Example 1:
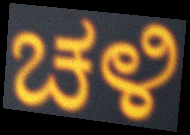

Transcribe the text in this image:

ಚಳಿ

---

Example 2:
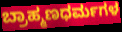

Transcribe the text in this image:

ಬ್ರಾಹ್ಮಣಧರ್ಮಗಳ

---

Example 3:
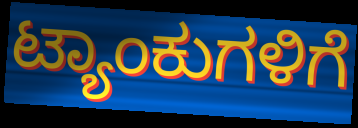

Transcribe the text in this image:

ಟ್ಯಾಂಕುಗಳಿಗೆ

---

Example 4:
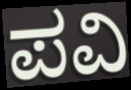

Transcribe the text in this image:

ಪವಿ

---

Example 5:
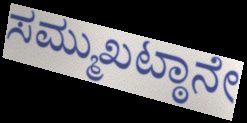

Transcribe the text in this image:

ಸಮ್ಮುಖಟ್ಠಾನೇ